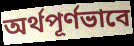
অর্থপূর্ণভাবে